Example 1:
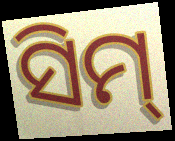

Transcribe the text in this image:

ସିମ୍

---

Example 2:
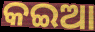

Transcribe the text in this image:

କଇଆ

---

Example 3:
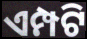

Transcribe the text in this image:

ଏମ୍ପଟି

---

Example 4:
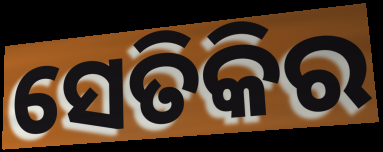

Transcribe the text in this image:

ସେତିକିର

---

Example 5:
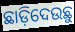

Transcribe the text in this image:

ଛାଡ଼ିଦେଉଛୁ